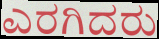
ಎರಗಿದರು